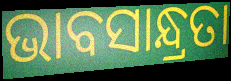
ଭାବସାନ୍ଧ୍ରତା